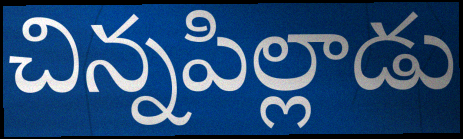
చిన్నపిల్లాడు